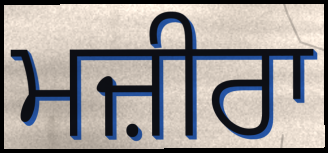
ਮਜ਼ੀਰਾ